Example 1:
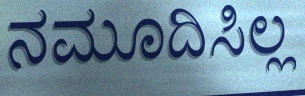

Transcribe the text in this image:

ನಮೂದಿಸಿಲ್ಲ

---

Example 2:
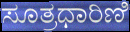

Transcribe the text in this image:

ಸೂತ್ರಧಾರಿಣಿ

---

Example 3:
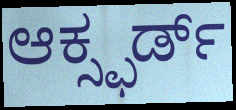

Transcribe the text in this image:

ಆಕ್ಸ್ಫರ್ಡ್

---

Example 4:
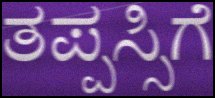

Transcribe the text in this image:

ತಪ್ಪಸ್ಸಿಗೆ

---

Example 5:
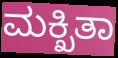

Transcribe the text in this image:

ಮಕ್ಖಿತಾ